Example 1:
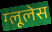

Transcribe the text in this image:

ग्लूलेस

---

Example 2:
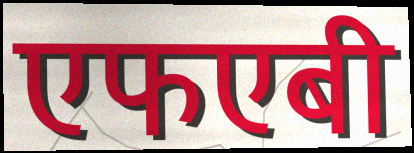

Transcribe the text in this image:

एफएबी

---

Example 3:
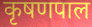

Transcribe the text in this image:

कृषणपाल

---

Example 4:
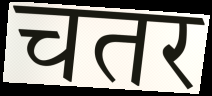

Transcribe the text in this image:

चतर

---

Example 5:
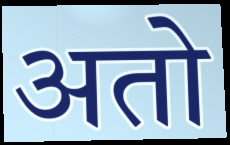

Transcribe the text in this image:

अतो